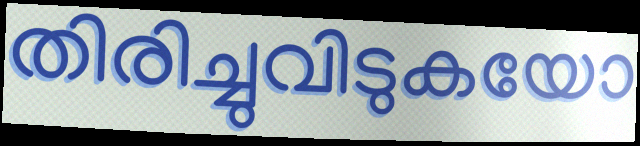
തിരിച്ചുവിടുകയോ